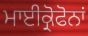
ਮਾਈਕ੍ਰੋਫੋਨਾਂ